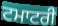
ਟਮਾਟਰੀ